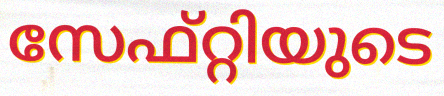
സേഫ്റ്റിയുടെ